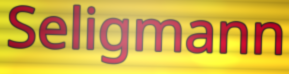
Seligmann